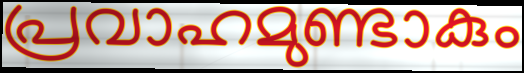
പ്രവാഹമുണ്ടാകും